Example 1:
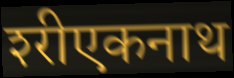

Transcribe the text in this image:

श्रीएकनाथ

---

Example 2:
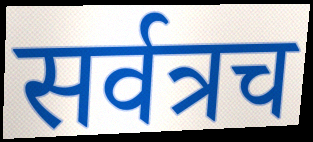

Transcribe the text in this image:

सर्वत्रच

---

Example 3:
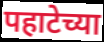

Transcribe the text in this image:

पहाटेच्या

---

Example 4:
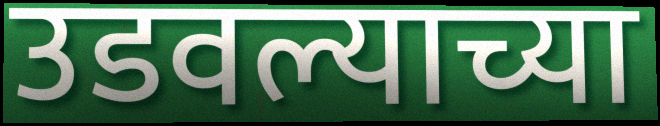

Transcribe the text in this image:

उडवल्याच्या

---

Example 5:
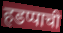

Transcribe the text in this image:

हडप्पाची